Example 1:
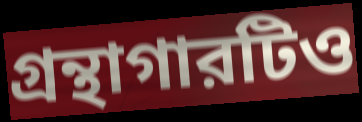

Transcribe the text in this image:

গ্রন্থাগারটিও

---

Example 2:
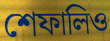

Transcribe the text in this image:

শেফালিও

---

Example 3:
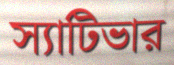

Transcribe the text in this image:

স্যাটিভার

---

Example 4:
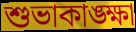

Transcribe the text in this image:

শুভাকাঙ্ক্ষা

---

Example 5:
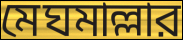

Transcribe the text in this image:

মেঘমাল্লার